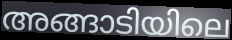
അങ്ങാടിയിലെ